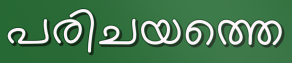
പരിചയത്തെ